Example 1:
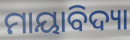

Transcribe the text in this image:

ମାୟାବିଦ୍ୟା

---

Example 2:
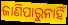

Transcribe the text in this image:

ଜାଣିପାରୁନାହିଁ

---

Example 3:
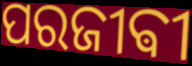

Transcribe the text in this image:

ପରଜୀଵୀ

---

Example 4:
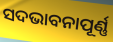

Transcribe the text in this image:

ସଦଭାବନାପୂର୍ଣ୍ଣ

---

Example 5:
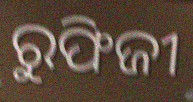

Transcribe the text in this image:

ରୁଫିଜୀ